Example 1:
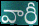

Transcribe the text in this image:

వారీ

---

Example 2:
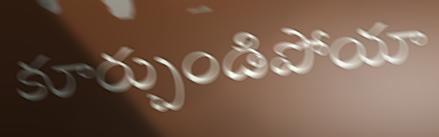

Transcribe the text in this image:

కూర్చుండిపోయా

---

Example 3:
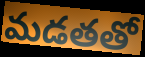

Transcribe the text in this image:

మడతతో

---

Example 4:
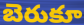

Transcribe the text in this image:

బెరుకూ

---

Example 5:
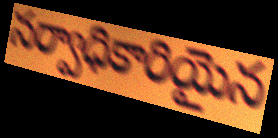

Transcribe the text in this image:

సర్వాధికారియైన